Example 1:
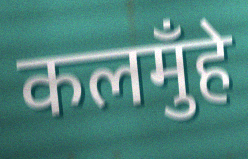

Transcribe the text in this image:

कलमुँहे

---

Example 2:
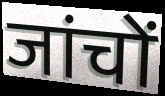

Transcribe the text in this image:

जांचों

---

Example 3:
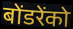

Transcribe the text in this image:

बोंडरेंको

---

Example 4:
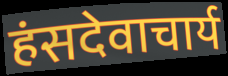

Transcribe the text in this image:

हंसदेवाचार्य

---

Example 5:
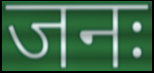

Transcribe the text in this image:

जनः